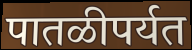
पातळीपर्यत